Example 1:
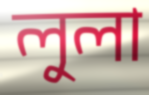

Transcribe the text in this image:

লুলা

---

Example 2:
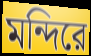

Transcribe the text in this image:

মন্দিরে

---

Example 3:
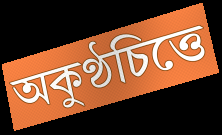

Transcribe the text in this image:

অকুণ্ঠচিত্তে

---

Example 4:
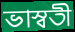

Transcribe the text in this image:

ভাস্বতী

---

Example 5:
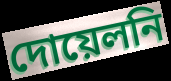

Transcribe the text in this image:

দোয়েলনি